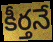
కీర్తనే